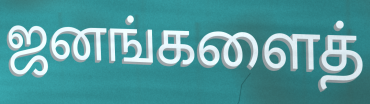
ஜனங்களைத்